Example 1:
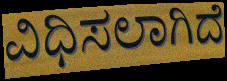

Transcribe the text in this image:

ವಿಧಿಸಲಾಗಿದೆ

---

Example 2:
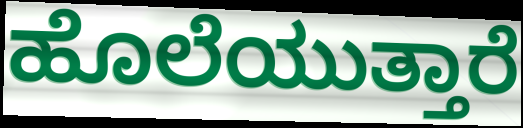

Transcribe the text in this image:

ಹೊಲೆಯುತ್ತಾರೆ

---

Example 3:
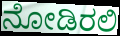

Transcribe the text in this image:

ನೋಡಿರಲಿ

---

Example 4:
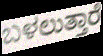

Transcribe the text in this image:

ಬಳಲುತ್ತಾರೆ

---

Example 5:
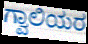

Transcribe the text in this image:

ಗ್ವಾಲಿಯರ